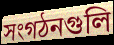
সংগঠনগুলি